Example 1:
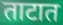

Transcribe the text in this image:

ताटात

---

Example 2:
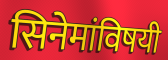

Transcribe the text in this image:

सिनेमांविषयी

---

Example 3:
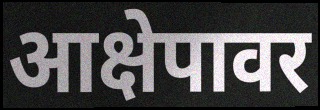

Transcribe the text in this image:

आक्षेपावर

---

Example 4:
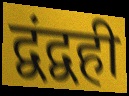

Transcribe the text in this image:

द्वंद्वही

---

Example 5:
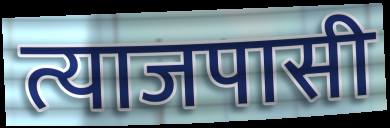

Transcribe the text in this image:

त्याजपासी